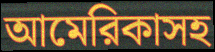
আমেরিকাসহ